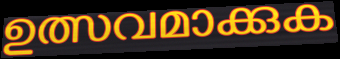
ഉത്സവമാക്കുക